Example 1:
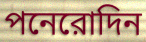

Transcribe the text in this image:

পনেরোদিন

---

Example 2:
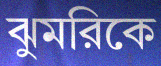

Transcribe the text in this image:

ঝুমরিকে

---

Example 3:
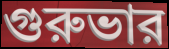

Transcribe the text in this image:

গুরুভার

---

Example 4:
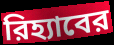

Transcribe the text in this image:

রিহ্যাবের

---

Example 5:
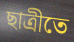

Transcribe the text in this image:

ছাত্রীতে